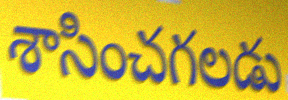
శాసించగలడు